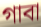
গাবা